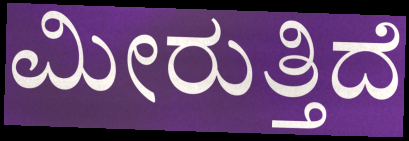
ಮೀರುತ್ತಿದೆ